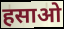
हसाओ